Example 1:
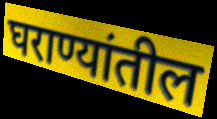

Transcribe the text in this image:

घराण्यांतील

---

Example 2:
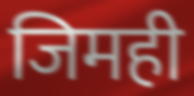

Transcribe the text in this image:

जिमही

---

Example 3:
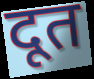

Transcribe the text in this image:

दूत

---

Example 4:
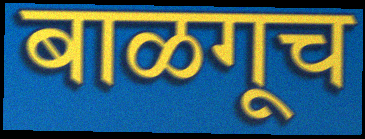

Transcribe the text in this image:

बाळगूच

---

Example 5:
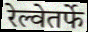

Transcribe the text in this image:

रेल्वेतर्फे